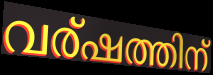
വര്ഷത്തിന്